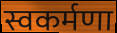
स्वकर्मणा